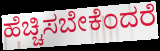
ಹೆಚ್ಚಿಸಬೇಕೆಂದರೆ